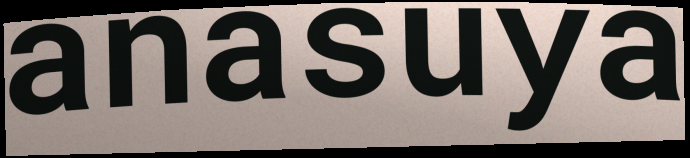
anasuya